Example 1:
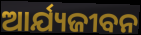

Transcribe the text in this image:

ଆର୍ଯ୍ୟଜୀବନ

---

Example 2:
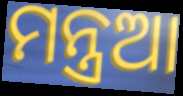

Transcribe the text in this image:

ମନ୍ତ୍ରଆ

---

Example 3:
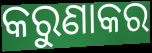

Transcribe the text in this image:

କରୁଣାକର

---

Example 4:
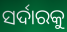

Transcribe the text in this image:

ସର୍ଦାରକୁ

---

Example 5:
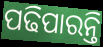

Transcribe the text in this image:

ପଢିପାରନ୍ତି